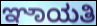
ಞಾಯತಿ